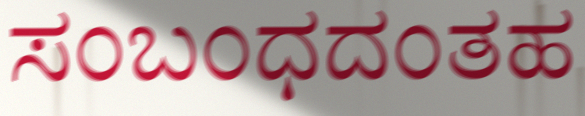
ಸಂಬಂಧದಂತಹ